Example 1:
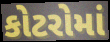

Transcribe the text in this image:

કોટરોમાં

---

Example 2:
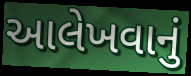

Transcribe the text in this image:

આલેખવાનું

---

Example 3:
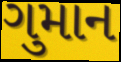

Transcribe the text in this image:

ગુમાન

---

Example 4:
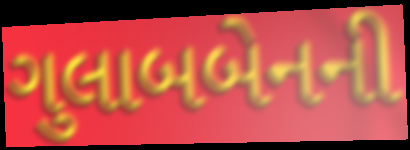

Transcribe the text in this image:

ગુલાબબેનની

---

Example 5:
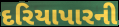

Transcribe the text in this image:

દરિયાપારની